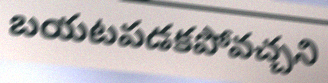
బయటపడకపోవచ్చని